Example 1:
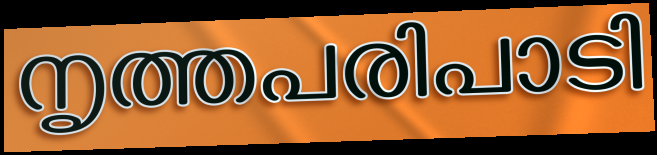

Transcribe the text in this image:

നൃത്തപരിപാടി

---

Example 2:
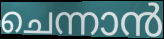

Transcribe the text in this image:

ചെന്നാൻ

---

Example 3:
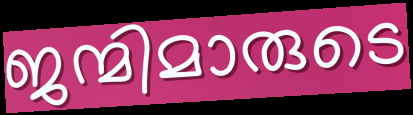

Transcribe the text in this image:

ജന്മിമാരുടെ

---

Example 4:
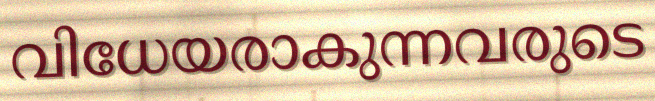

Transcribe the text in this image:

വിധേയരാകുന്നവരുടെ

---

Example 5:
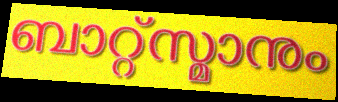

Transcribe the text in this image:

ബാറ്റ്സ്മാനും